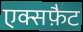
एक्सफ़ैट